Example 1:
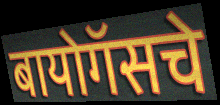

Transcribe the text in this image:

बायोगॅसचे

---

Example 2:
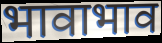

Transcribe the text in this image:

भावाभाव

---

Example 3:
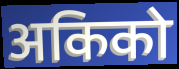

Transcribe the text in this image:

अकिको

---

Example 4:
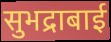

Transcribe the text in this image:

सुभद्राबाई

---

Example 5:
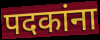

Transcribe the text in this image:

पदकांना